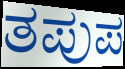
ತಪುಪ